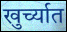
खुर्च्यात